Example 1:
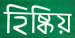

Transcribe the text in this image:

হিষ্কিয়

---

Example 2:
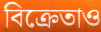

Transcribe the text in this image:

বিক্রেতাও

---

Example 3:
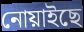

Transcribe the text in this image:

নোয়াইছে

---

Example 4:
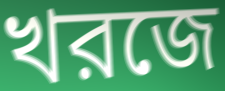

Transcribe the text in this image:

খরজে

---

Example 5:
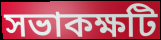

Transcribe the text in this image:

সভাকক্ষটি